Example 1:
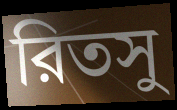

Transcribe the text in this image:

রিতসু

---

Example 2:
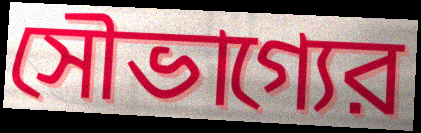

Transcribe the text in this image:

সৌভাগ্যের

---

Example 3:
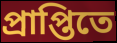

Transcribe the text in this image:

প্রাপ্তিতে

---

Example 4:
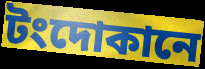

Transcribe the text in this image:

টংদোকানে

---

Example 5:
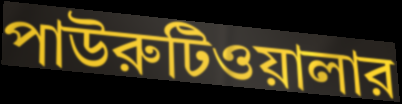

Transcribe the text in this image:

পাউরুটিওয়ালার